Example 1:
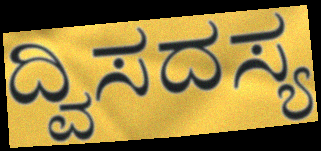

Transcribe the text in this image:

ದ್ವಿಸದಸ್ಯ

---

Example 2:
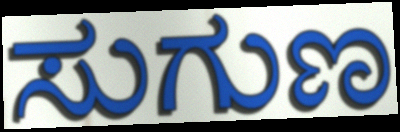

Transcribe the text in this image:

ಸುಗುಣ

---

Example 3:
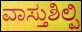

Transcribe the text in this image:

ವಾಸ್ತುಶಿಲ್ಪಿ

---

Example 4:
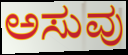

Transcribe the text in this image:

ಅಸುವು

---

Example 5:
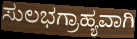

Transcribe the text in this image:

ಸುಲಭಗ್ರಾಹ್ಯವಾಗಿ